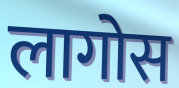
लागोस